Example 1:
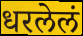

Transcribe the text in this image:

धरलेलं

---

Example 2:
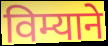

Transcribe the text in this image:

विम्याने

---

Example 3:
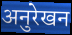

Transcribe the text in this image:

अनुरेखन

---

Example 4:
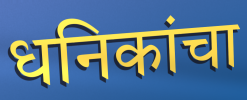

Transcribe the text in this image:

धनिकांचा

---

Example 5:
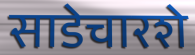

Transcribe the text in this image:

साडेचारशे